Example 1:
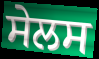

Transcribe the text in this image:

ਸੇਲਸ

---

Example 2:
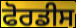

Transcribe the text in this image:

ਫੋਰਡੀਸ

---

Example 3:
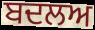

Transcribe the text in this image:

ਬਦਲਅ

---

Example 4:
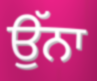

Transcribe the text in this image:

ਉੱਨਾ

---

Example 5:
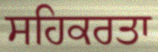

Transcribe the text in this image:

ਸਹਿਕਰਤਾ